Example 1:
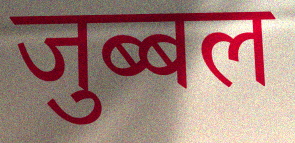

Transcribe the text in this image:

जुब्बल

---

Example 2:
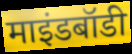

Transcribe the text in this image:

माइंडबॉडी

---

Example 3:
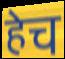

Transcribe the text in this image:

हेच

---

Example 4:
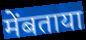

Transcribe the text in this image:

मेंबताया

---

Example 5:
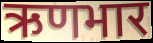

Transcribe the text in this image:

ऋणभार